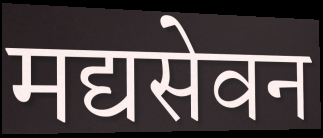
मद्यसेवन